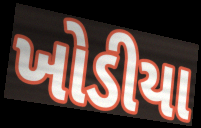
ખોડીયા